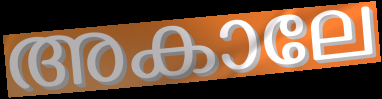
അകാലേ